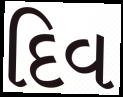
દિવ